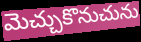
మెచ్చుకొనుచును